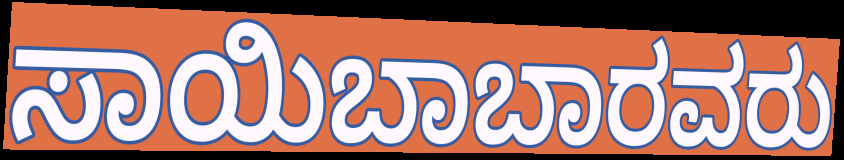
ಸಾಯಿಬಾಬಾರವರು